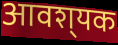
आवश्यक